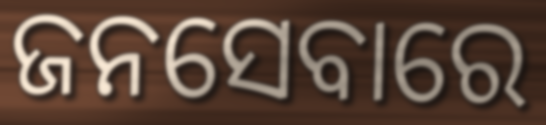
ଜନସେବାରେ